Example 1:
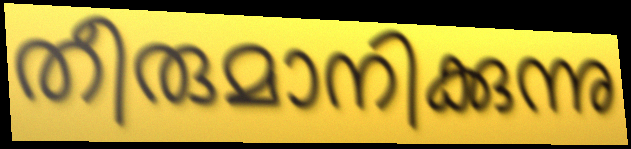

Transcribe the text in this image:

തീരുമാനിക്കുന്നു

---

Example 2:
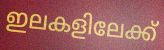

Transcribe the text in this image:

ഇലകളിലേക്ക്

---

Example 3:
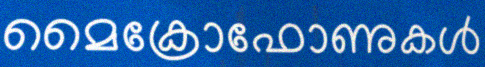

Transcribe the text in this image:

മൈക്രോഫോണുകൾ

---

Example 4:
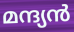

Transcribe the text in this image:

മന്ദ്യൻ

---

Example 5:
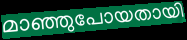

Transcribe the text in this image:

മാഞ്ഞുപോയതായി